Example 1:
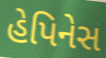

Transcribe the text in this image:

હેપિનેસ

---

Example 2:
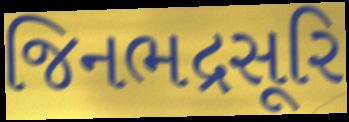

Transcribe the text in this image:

જિનભદ્રસૂરિ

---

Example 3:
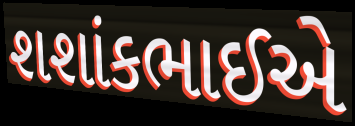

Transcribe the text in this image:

શશાંકભાઈએ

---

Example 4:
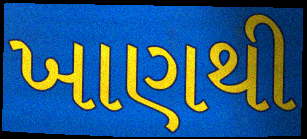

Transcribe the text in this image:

ખાણથી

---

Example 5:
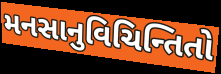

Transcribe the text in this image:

મનસાનુવિચિન્તિતો